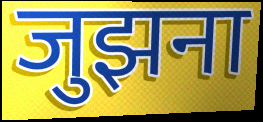
जुझना